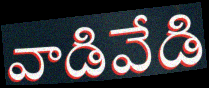
వాడివేడి